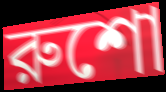
রুশো